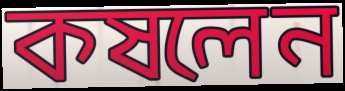
কষলেন